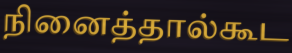
நினைத்தால்கூட